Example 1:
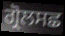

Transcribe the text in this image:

ਗ੍ਰੋਲਸਛ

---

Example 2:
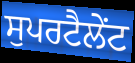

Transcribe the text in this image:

ਸੁਪਰਟੈਲੇਂਟ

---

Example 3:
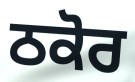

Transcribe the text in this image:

ਠਕੋਰ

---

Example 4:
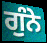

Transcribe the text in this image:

ਗੁੰਨੇ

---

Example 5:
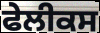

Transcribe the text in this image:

ਫੇਲੀਕਸ